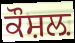
ਕੌਸ਼ਲ਼